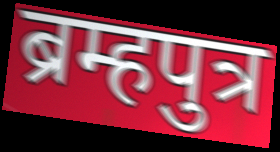
ब्रम्हपुत्र